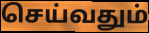
செய்வதும்